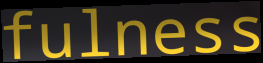
fulness